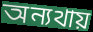
অন্যথায়